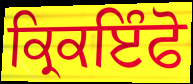
ਕ੍ਰਿਕਇੰਫੋ